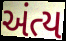
અંત્ય